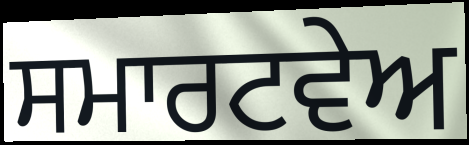
ਸਮਾਰਟਵੇਅ